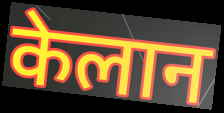
केलान